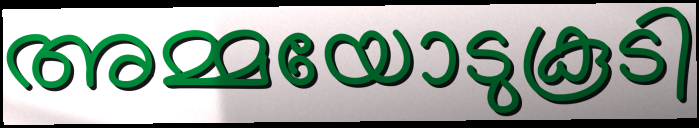
അമ്മയോടുകൂടി